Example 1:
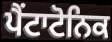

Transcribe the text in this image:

ਪੈਂਟਾਟੋਨਿਕ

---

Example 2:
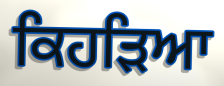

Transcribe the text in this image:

ਕਿਹੜਿਆ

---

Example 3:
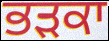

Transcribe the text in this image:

ਭੜਕਾ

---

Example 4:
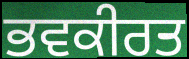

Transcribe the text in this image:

ਭਵਕੀਰਤ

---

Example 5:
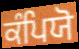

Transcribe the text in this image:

ਕੰਪਿਯੋ